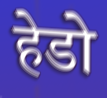
हेडो